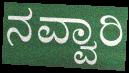
ನವ್ವಾರಿ